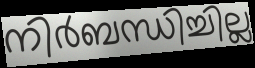
നിർബന്ധിച്ചില്ല